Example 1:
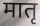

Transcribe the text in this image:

मातृ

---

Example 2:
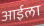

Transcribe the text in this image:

आईला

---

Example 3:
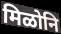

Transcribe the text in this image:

मिळोनि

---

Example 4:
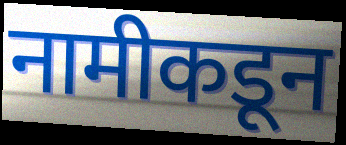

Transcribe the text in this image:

नामीकडून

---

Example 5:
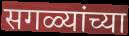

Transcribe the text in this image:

सगळ्यांच्या